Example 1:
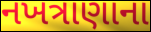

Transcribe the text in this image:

નખત્રાણાના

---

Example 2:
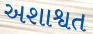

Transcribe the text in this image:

અશાશ્વત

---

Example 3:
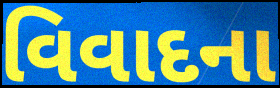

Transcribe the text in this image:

વિવાદના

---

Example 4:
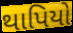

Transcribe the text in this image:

થાપિયો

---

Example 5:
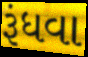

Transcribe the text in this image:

રૂંધવા